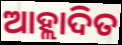
ଆହ୍ଲାଦିତ